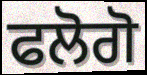
ਫਲੋਗੋ